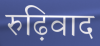
रुढ़िवाद